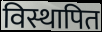
विस्थापित